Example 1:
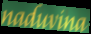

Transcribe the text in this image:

naduvina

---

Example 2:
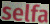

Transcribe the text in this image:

selfa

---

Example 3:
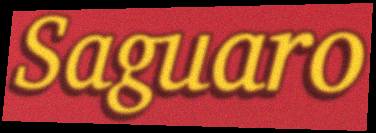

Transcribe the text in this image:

Saguaro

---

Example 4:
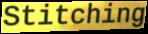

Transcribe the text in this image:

Stitching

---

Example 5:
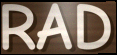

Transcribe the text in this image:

RAD